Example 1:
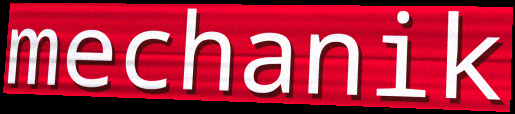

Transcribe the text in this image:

mechanik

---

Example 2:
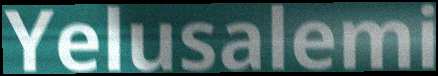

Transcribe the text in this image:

Yelusalemi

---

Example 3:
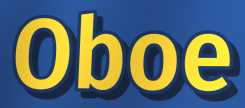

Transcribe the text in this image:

Oboe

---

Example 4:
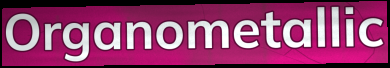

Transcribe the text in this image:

Organometallic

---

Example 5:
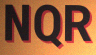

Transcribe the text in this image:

NQR